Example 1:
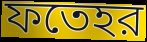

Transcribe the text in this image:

ফতেহর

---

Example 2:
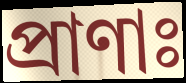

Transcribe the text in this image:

প্রাণাঃ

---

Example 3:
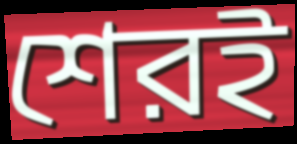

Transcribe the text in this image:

শেরই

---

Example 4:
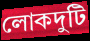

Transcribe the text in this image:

লোকদুটি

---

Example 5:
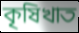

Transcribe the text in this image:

কৃষিখাত